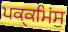
ਪਕ੍ਕਮਿਂਸੁ